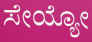
ಸೇಯ್ಯೋ